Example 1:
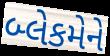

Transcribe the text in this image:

બ્લેકમેને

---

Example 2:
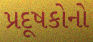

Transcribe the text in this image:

પ્રદૂષકોનો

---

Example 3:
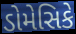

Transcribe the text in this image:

ડોમેસિકે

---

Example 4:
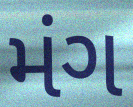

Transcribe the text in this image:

મંગ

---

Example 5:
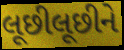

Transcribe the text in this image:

લૂછીલૂછીને